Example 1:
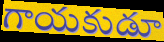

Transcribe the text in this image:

గాయకుడూ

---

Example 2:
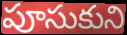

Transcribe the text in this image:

పూసుకుని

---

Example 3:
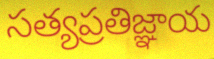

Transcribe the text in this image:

సత్యప్రతిజ్ఞాయ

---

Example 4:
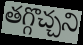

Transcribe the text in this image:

తగ్గొచ్చని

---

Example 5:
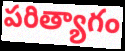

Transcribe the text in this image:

పరిత్యాగం